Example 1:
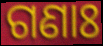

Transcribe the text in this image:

ଗଣାଃ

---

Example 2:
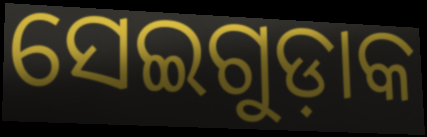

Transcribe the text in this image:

ସେଇଗୁଡ଼ାକ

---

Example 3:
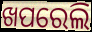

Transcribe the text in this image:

ଖପରେଲି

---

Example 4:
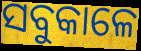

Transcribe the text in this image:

ସବୁକାଳେ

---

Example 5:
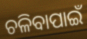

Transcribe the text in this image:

ଚଳିବାପାଇଁ